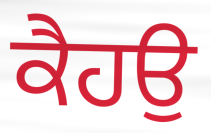
ਕੈਹਉ